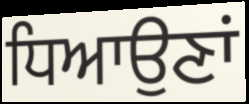
ਧਿਆਉਣਾਂ